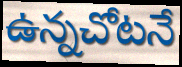
ఉన్నచోటనే